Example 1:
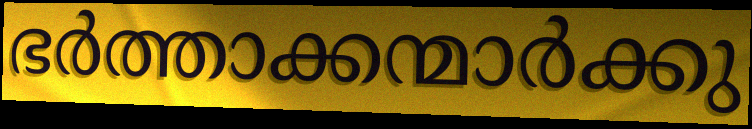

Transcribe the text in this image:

ഭർത്താക്കന്മാർക്കു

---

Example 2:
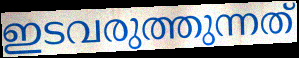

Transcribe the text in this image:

ഇടവരുത്തുന്നത്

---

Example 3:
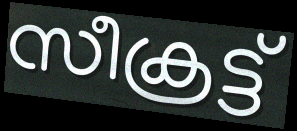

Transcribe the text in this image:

സീക്രട്ട്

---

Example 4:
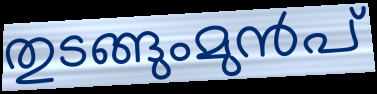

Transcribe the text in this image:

തുടങ്ങുംമുൻപ്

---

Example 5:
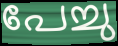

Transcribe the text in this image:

പേച്ചു